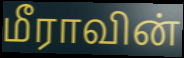
மீராவின்